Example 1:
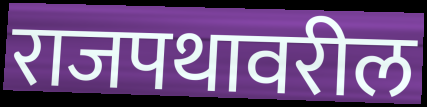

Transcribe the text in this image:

राजपथावरील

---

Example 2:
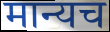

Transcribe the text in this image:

मान्यच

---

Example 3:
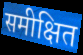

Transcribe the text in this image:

समीक्षित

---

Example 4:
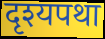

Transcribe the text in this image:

दृश्यपथा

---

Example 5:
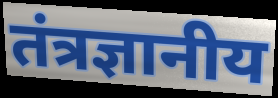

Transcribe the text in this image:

तंत्रज्ञानीय